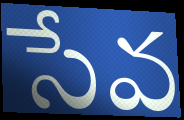
సేవ